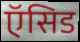
ऍसिड